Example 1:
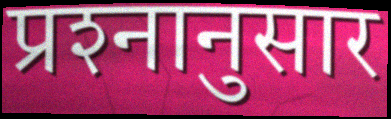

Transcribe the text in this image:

प्रश्नानुसार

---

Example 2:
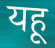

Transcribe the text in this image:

यहू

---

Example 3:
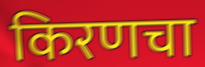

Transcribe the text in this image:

किरणचा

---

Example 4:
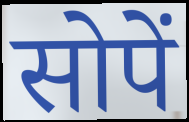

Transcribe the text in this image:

सोपें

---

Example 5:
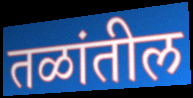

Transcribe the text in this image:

तळांतील